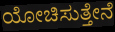
ಯೋಚಿಸುತ್ತೇನೆ